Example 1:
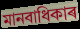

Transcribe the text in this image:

মানবাধিকাৰ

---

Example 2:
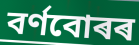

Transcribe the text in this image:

বৰ্ণবোৰৰ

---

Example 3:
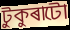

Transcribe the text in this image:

টুকুৰাটো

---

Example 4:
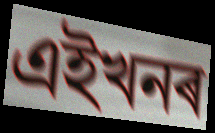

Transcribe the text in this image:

এইখনৰ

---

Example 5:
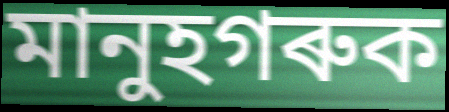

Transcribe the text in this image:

মানুহগৰুক